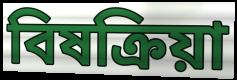
বিষক্ৰিয়া